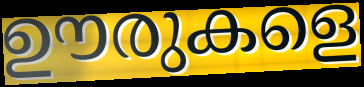
ഊരുകളെ